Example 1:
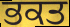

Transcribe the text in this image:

ਭਕਤ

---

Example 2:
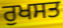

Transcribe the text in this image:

ਰੁਖਸਤ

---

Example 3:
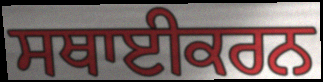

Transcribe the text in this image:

ਸਥਾਈਕਰਨ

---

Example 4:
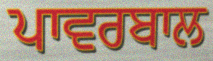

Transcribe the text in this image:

ਪਾਵਰਬਾਲ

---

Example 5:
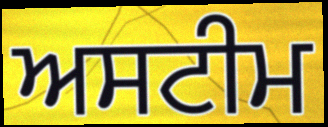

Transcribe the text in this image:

ਅਸਟੀਮ